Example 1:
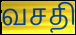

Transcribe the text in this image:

வசதி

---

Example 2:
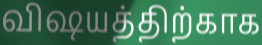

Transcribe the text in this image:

விஷயத்திற்காக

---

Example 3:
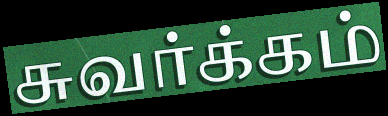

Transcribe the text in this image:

சுவர்க்கம்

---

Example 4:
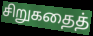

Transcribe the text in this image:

சிறுகதைத்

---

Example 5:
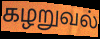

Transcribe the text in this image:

கழறுவல்